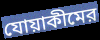
যোয়াকীমের